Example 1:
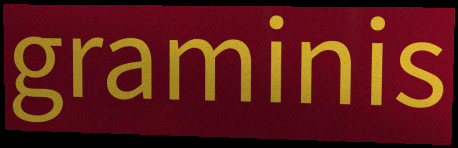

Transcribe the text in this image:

graminis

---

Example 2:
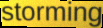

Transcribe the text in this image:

storming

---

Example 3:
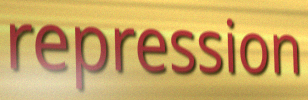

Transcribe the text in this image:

repression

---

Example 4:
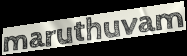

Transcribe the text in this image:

maruthuvam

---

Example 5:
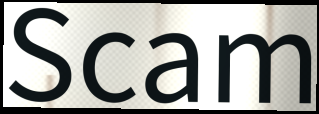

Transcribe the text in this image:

Scam